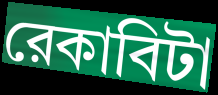
রেকাবিটা